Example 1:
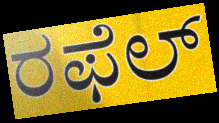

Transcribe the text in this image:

ರಫೆಲ್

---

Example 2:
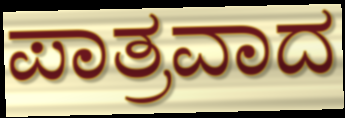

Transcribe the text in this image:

ಪಾತ್ರವಾದ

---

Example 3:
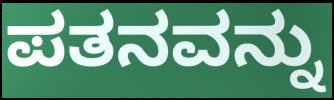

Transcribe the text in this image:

ಪತನವನ್ನು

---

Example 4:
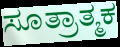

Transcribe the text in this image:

ಸೂತ್ರಾತ್ಮಕ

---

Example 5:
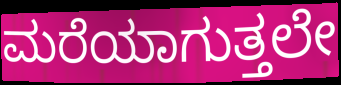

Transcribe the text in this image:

ಮರೆಯಾಗುತ್ತಲೇ